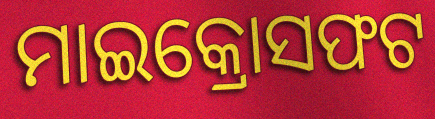
ମାଇକ୍ରୋସଫଟ